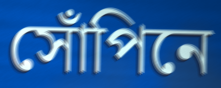
সোঁপিনে